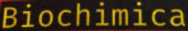
Biochimica